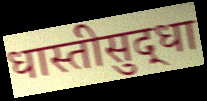
धास्तीसुद्धा